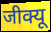
जीक्यू